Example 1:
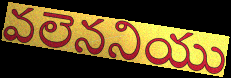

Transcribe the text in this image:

వలెననియు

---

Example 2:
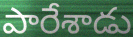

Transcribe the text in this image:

పారేశాడు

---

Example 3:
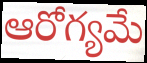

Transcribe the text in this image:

ఆరోగ్యమే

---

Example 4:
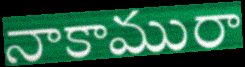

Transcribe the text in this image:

నాకామురా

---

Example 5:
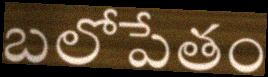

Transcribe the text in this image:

బలోపేతం